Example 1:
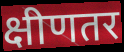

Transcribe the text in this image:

क्षीणतर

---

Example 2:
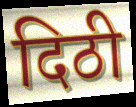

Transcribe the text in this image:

दिठी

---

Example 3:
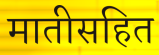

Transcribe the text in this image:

मातीसहित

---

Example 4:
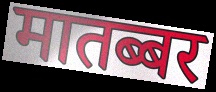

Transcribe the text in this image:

मातब्बर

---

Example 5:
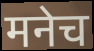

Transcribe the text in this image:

मनेच